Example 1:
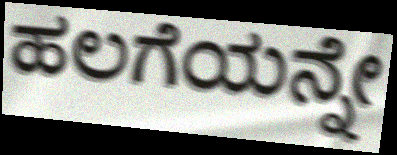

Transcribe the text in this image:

ಹಲಗೆಯನ್ನೇ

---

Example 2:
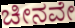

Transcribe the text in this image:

ಚೀನವೇ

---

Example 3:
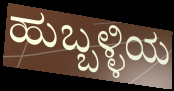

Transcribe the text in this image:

ಹುಬ್ಬಳ್ಳಿಯ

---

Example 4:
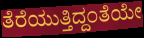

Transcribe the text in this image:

ತೆರೆಯುತ್ತಿದ್ದಂತೆಯೇ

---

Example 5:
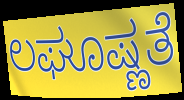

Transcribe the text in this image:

ಲಘೂಷ್ಣತೆ